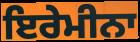
ਇਰੇਮੀਨਾ